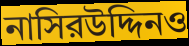
নাসিরউদ্দিনও